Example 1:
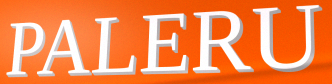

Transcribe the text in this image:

PALERU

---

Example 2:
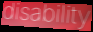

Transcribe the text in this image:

disability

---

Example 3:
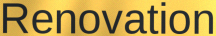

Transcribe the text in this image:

Renovation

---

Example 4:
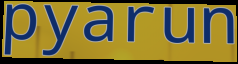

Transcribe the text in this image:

pyarun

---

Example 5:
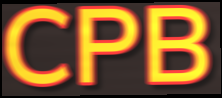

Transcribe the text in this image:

CPB